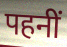
पहनीं